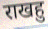
राखहु